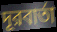
দূরবার্তা